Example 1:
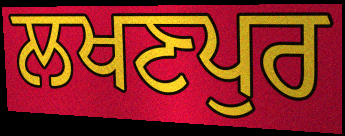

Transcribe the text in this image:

ਲਖਣਪੁਰ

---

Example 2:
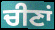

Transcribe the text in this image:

ਚੀਣਾਂ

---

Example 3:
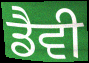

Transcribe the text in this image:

ਡੈਵੀ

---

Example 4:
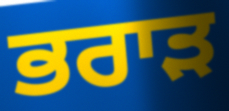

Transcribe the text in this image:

ਭਰਾੜ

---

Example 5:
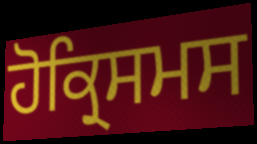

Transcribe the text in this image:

ਹੋਕ੍ਰਿਸਮਸ